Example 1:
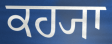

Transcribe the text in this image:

ਕਹ੍ਯਾ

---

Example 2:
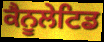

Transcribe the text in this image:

ਕੈਨੂਲੇਟਿਡ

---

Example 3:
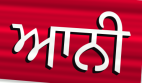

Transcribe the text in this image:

ਆਨੀ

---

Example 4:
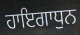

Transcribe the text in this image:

ਹਾਇਗਾਧੁਨ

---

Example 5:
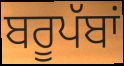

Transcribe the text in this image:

ਬਰੂਪੱਬਾਂ